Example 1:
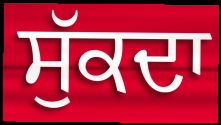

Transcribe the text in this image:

ਸੁੱਕਦਾ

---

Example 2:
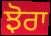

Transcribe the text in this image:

ਝੋਰਾ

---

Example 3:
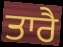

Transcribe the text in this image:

ਤਾਰੈ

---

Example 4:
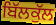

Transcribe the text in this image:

ਬਿੱਲਕੁੱਲ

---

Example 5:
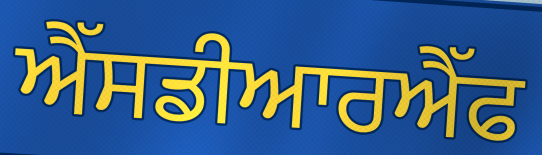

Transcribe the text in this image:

ਐੱਸਡੀਆਰਐੱਫ